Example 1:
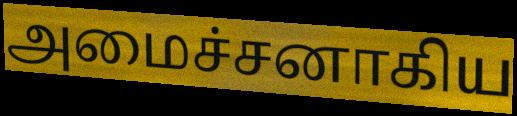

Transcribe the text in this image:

அமைச்சனாகிய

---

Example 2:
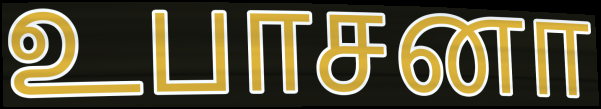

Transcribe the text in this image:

உபாசனா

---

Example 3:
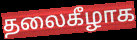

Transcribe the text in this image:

தலைகீழாக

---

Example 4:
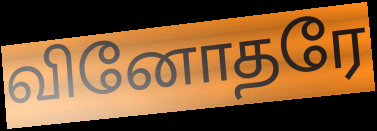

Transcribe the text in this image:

வினோதரே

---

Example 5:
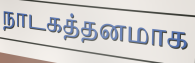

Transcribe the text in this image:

நாடகத்தனமாக